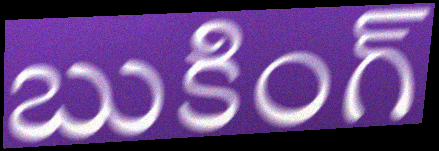
బుకింగ్